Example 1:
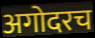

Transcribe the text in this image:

अगोदरच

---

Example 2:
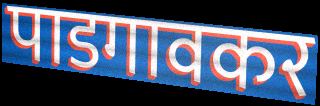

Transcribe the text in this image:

पाडगावकर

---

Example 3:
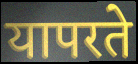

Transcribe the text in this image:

यापरते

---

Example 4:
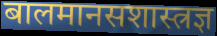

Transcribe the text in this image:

बालमानसशास्त्रज्ञ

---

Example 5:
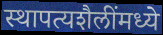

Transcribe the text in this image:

स्थापत्यशैलींमध्ये